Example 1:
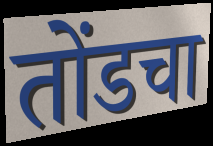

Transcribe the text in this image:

तोंडचा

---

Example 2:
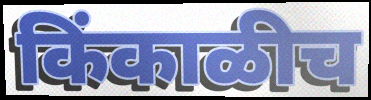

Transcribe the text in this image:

किंकाळीच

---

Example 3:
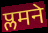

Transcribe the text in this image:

प्लमने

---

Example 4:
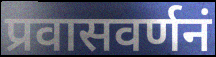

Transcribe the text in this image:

प्रवासवर्णनं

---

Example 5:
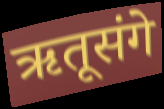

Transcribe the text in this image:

ऋतूसंगे